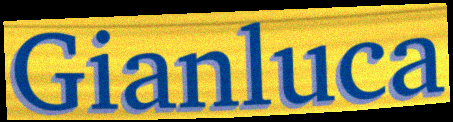
Gianluca